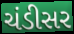
ચંડીસર